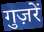
गुज़रें